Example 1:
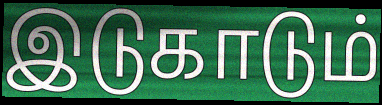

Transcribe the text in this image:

இடுகாடும்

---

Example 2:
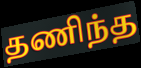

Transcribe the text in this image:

தணிந்த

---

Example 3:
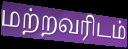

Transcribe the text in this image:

மற்றவரிடம்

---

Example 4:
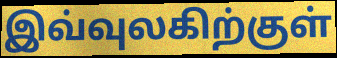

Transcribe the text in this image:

இவ்வுலகிற்குள்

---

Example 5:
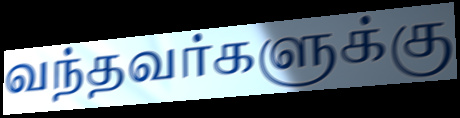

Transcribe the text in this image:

வந்தவர்களுக்கு